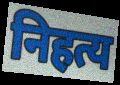
निहत्य